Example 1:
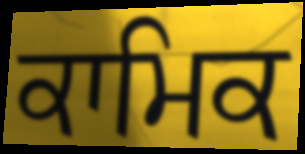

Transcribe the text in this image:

ਕਾਮਿਕ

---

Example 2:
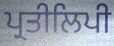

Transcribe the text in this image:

ਪ੍ਰਤੀਲਿਪੀ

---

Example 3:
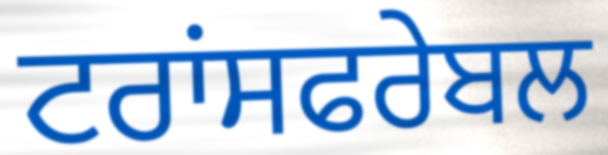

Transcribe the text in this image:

ਟਰਾਂਸਫਰੇਬਲ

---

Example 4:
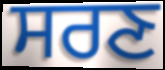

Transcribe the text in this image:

ਸਰਣ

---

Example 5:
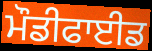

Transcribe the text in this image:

ਮੌਡੀਫਾਈਡ